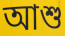
আশু